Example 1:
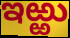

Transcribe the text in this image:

ఇఱ్ఱు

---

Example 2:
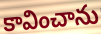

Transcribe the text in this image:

కావించాను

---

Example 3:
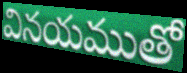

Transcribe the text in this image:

వినయముతో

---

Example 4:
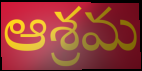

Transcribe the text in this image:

ఆశ్రమ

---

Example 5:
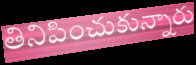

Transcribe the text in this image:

తినిపించుకున్నారు